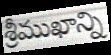
శ్రీముఖాన్ని